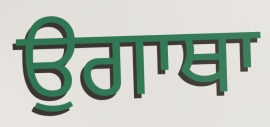
ਉਗਾਥਾ